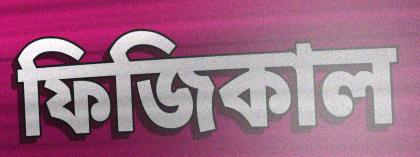
ফিজিকাল